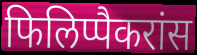
फिलिप्पैकरांस